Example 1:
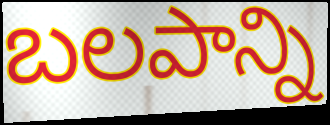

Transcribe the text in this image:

బలపాన్ని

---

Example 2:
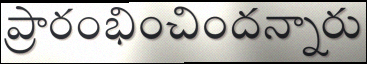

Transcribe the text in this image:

ప్రారంభించిందన్నారు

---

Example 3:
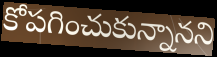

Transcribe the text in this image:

కోపగించుకున్నానని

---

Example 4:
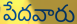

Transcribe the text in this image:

పేదవారు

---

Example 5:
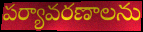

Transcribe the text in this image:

పర్యావరణాలను